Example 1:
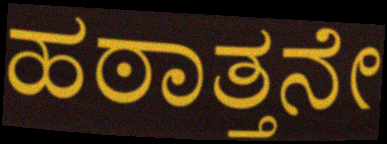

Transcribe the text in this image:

ಹಠಾತ್ತನೇ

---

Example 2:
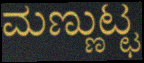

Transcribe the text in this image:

ಮಣ್ಣುಟ್ಟ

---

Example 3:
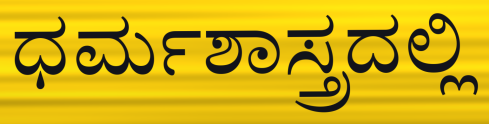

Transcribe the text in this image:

ಧರ್ಮಶಾಸ್ತ್ರದಲ್ಲಿ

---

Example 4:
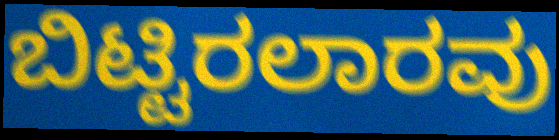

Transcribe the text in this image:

ಬಿಟ್ಟಿರಲಾರವು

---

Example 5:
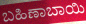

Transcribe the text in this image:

ಬಹಿಣಾಬಾಯಿ